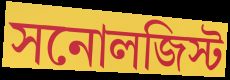
সনোলজিস্ট